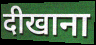
दीखाना